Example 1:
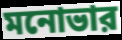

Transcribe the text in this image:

মনোভার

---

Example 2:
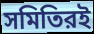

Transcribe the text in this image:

সমিতিরই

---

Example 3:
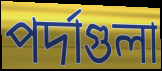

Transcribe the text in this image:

পর্দাগুলা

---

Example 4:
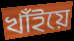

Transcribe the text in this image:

খাঁইয়ে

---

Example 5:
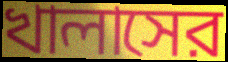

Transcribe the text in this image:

খালাসের